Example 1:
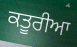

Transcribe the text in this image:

ਕਤੂਰੀਆ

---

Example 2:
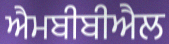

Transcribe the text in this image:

ਐਮਬੀਬੀਐਲ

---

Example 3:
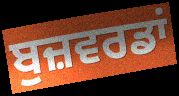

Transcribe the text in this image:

ਬੁਜ਼ਵਰਡਾਂ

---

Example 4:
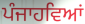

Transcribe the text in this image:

ਪੰਜਾਹਵਿਆਂ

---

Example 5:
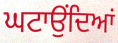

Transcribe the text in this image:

ਘਟਾਉਂਦਿਆਂ